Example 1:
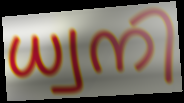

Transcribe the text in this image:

ധ്വനി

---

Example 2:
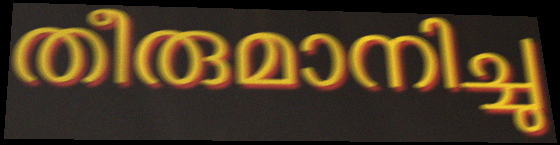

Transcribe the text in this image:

തീരുമാനിച്ചു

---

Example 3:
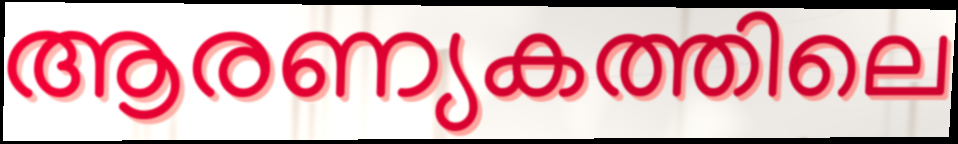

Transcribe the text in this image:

ആരണ്യകത്തിലെ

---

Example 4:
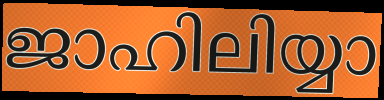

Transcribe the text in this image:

ജാഹിലിയ്യാ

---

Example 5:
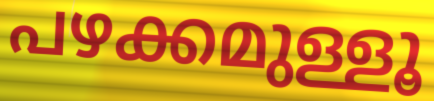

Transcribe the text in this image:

പഴക്കമുള്ളൂ